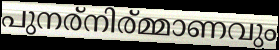
പുനര്നിര്മ്മാണവും